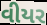
વીયર